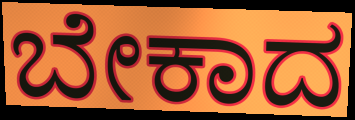
ಬೇಕಾದ